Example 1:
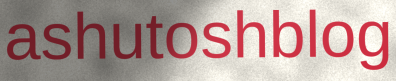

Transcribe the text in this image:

ashutoshblog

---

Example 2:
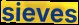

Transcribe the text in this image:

sieves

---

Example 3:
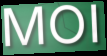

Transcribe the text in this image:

MOI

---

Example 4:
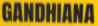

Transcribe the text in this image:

GANDHIANA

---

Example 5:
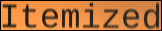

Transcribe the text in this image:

Itemized